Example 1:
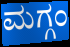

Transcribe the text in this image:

ಮಗ್ಗಂ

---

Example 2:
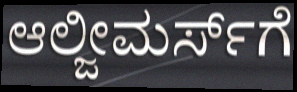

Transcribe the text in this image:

ಆಲ್ಜೀಮರ್ಸ್‌ಗೆ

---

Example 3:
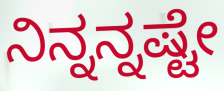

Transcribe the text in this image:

ನಿನ್ನನ್ನಷ್ಟೇ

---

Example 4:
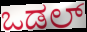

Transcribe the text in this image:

ಒಡಲ್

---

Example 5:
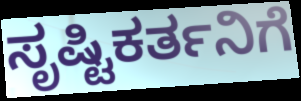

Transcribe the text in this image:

ಸೃಷ್ಟಿಕರ್ತನಿಗೆ